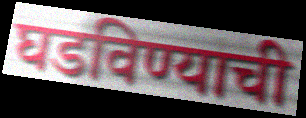
घडविण्याची